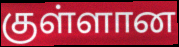
குள்ளான